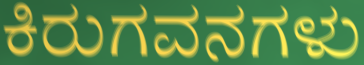
ಕಿರುಗವನಗಳು